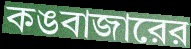
কঙবাজারের